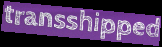
transshipped